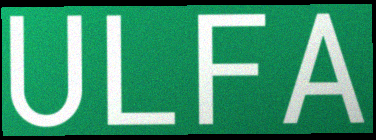
ULFA